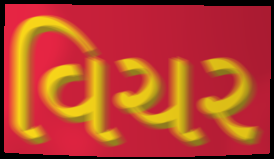
વિચર